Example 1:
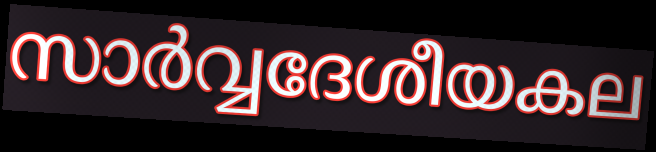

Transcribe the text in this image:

സാർവ്വദേശീയകല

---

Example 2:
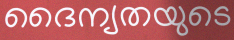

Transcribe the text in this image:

ദൈന്യതയുടെ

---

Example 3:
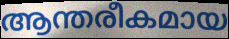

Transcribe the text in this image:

ആന്തരീകമായ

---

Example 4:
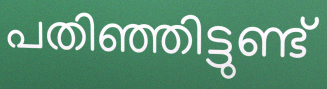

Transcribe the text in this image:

പതിഞ്ഞിട്ടുണ്ട്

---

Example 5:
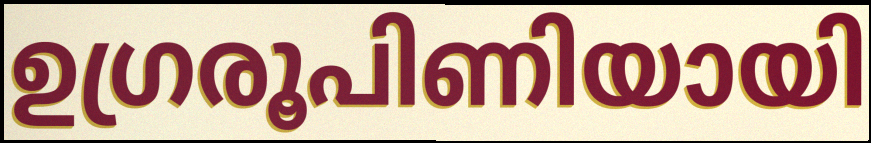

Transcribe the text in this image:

ഉഗ്രരൂപിണിയായി